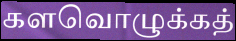
களவொழுக்கத்